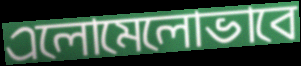
এলোমেলোভাবে